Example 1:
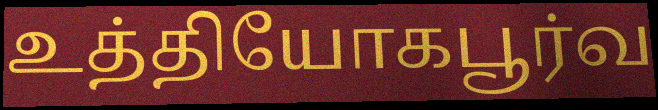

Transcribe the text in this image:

உத்தியோகபூர்வ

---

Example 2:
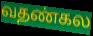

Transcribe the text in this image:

வதண்கல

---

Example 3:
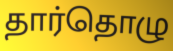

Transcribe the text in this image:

தார்தொழு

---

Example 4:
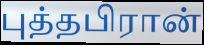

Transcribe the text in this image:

புத்தபிரான்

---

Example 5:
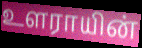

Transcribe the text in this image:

உளராயின்